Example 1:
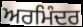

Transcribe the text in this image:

ਅਰਮਿੰਦਰ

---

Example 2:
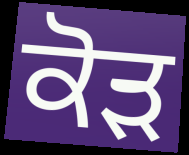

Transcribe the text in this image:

ਕੋੜ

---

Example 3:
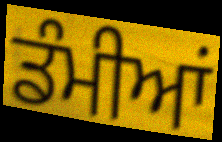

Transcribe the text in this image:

ਡੰਮੀਆਂ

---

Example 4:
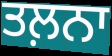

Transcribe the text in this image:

ਤਲ਼ਨਾ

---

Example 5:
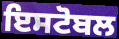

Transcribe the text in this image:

ਇਸਟੋਬਲ